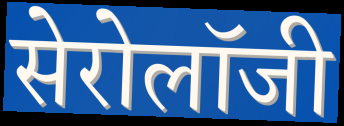
सेरोलॉजी